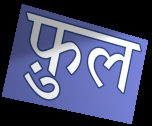
फ़ुल